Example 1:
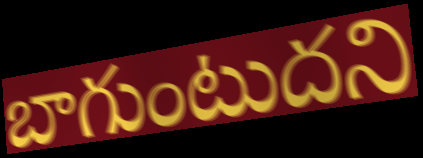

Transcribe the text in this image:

బాగుంటుదని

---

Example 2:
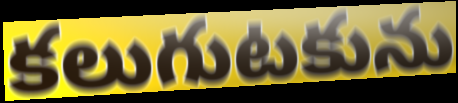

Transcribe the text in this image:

కలుగుటకును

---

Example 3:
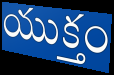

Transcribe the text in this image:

యుక్తం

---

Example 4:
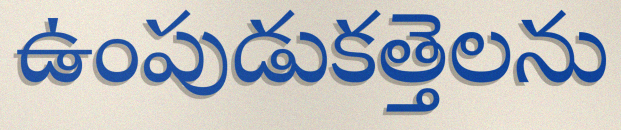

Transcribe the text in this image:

ఉంపుడుకత్తెలను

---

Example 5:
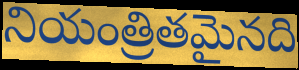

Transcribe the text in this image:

నియంత్రితమైనది